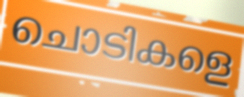
ചൊടികളെ